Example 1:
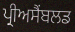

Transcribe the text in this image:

ਪ੍ਰੀਅਸੈਂਬਲਡ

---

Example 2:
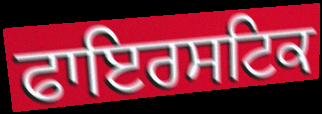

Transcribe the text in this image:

ਫਾਇਰਸਟਿਕ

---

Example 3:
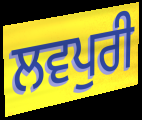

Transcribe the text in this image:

ਲਵਪੁਰੀ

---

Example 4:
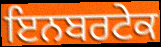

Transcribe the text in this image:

ਇਨਬਰਟੇਕ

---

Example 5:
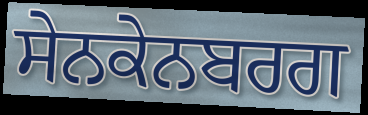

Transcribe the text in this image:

ਸੇਨਕੇਨਬਰਗ